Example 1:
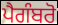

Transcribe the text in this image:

ਪੈਗੰਬਰੋ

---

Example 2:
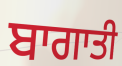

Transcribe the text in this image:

ਬਾਗਾਤੀ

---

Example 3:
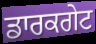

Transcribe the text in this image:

ਡਾਰਕਗੇਟ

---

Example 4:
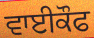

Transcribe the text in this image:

ਵਾਈਕੌਫ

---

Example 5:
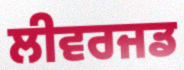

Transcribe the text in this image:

ਲੀਵਰਜਡ